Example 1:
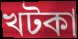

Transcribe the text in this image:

খটকা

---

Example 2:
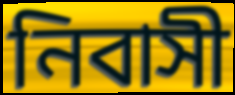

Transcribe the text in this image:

নিবাসী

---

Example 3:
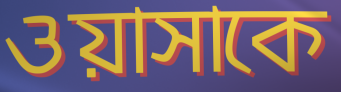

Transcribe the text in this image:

ওয়াসাকে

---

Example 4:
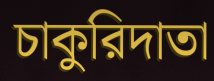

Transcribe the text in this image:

চাকুরিদাতা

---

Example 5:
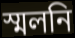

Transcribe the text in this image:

স্মলনি